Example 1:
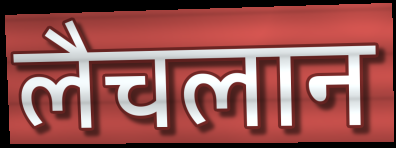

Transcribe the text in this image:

लैचलान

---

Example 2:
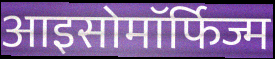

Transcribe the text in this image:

आइसोमॉर्फिज्म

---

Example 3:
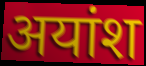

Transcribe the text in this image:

अयांश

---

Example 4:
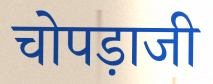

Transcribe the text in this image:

चोपड़ाजी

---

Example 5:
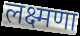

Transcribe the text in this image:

लक्ष्मणा